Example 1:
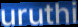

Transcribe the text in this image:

uruthi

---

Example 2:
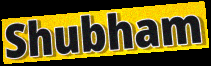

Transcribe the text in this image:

Shubham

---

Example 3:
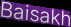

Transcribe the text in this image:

Baisakh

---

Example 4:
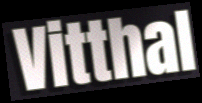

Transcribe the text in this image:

Vitthal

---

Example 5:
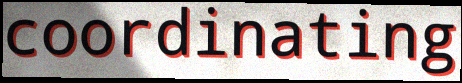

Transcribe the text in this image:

coordinating